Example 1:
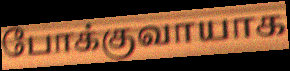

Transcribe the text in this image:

போக்குவாயாக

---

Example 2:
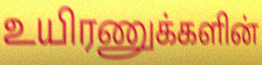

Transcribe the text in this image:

உயிரணுக்களின்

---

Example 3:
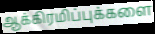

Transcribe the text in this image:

ஆக்கிரமிப்புக்களை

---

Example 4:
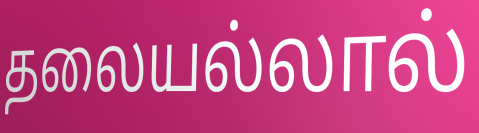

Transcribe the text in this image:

தலையல்லால்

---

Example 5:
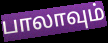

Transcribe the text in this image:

பாலாவும்